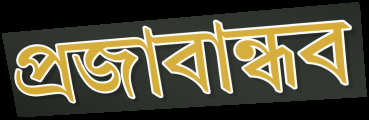
প্রজাবান্ধব